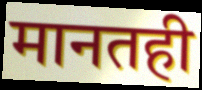
मानतही